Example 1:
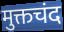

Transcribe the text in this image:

मुक्तचंद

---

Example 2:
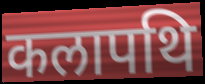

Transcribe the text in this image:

कलापथि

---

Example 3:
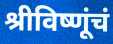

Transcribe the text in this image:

श्रीविष्णूंचं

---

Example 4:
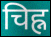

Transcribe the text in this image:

चिह्न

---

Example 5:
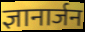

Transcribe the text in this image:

ज्ञानार्जन